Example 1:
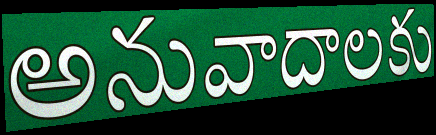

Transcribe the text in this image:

అనువాదాలకు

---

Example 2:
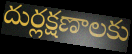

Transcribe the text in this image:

దుర్లక్షణాలకు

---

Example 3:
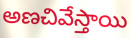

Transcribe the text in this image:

అణచివేస్తాయి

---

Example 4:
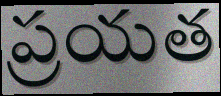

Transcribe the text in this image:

ప్రయత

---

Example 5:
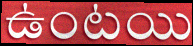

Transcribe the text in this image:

ఉంటయి